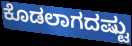
ಕೊಡಲಾಗದಷ್ಟು